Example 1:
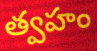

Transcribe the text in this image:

త్వహం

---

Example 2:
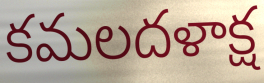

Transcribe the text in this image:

కమలదళాక్ష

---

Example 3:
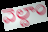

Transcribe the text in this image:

వెల్దాం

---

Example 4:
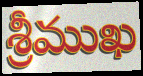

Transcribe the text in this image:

శ్రీముఖ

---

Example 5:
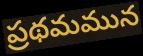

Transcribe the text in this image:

ప్రథమమున